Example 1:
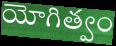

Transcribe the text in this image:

యోగిత్వం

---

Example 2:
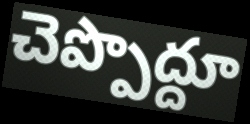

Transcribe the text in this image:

చెప్పొద్దూ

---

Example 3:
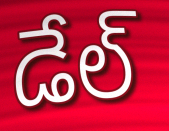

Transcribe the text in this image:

డేల్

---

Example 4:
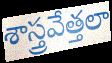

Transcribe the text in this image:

శాస్త్రవేత్తలా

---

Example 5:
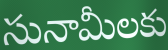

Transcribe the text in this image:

సునామీలకు